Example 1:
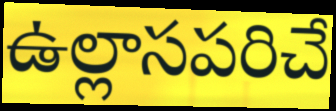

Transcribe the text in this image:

ఉల్లాసపరిచే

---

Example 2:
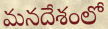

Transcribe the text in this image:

మనదేశంలో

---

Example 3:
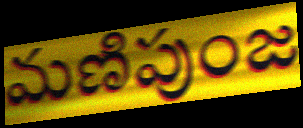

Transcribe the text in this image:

మణిపుంజ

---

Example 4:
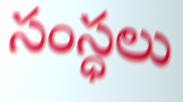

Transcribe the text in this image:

సంస్ధలు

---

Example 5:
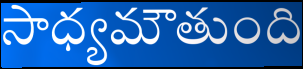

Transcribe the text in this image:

సాధ్యమౌతుంది